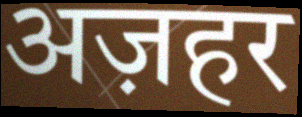
अज़हर